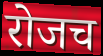
रोजच